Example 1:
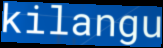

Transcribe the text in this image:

kilangu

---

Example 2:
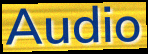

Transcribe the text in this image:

Audio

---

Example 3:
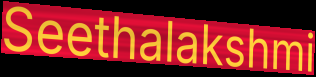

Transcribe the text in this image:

Seethalakshmi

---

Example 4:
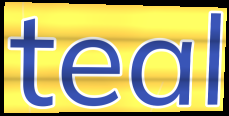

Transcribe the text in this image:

teal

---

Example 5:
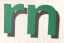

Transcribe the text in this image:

rn